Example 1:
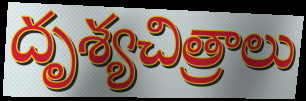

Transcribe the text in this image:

దృశ్యచిత్రాలు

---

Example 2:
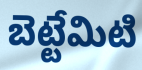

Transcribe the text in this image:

బెట్టేమిటి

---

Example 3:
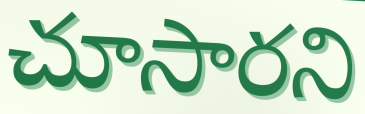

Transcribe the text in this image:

చూసారని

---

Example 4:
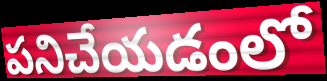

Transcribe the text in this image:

పనిచేయడంలో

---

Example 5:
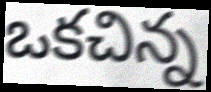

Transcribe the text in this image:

ఒకచిన్న